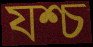
যশ্চ